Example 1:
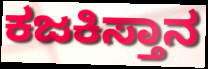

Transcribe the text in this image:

ಕಜಕಿಸ್ತಾನ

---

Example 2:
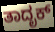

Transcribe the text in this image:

ತಾದೃಕ್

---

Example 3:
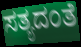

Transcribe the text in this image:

ಸತ್ಯದಂತೆ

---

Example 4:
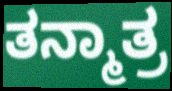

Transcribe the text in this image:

ತನ್ಮಾತ್ರ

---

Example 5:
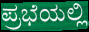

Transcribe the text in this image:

ಪ್ರಭೆಯಲ್ಲಿ